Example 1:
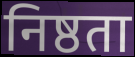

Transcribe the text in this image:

निष्ठता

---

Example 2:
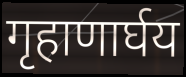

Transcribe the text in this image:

गृहाणार्घय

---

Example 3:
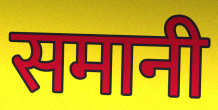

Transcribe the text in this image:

समानी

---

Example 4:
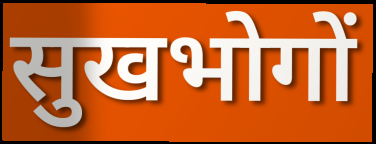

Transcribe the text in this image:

सुखभोगों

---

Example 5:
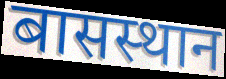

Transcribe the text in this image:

बासस्थान